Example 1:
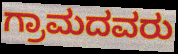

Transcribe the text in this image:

ಗ್ರಾಮದವರು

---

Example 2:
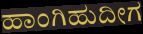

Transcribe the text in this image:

ಹಾಂಗಿಹುದೀಗ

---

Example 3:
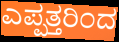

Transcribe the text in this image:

ಎಪ್ಪತ್ತರಿಂದ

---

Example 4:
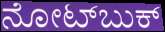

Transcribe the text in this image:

ನೋಟ್‌ಬುಕ್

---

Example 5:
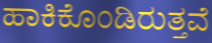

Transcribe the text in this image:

ಹಾಕಿಕೊಂಡಿರುತ್ತವೆ